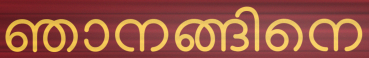
ഞാനങ്ങിനെ